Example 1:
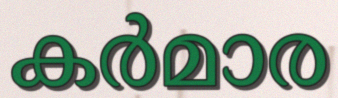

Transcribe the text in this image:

കർമാര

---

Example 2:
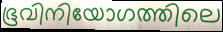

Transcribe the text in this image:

ഭൂവിനിയോഗത്തിലെ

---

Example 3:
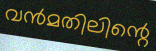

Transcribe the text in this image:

വൻമതിലിന്റെ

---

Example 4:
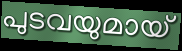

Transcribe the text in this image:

പുടവയുമായ്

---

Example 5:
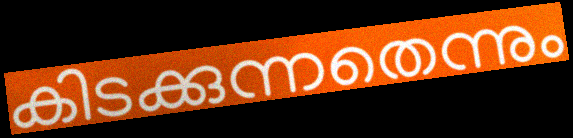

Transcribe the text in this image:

കിടക്കുന്നതെന്നും